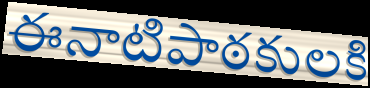
ఈనాటిపాఠకులకి